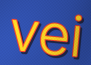
vei